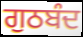
ਗੁਠਬੰਦ